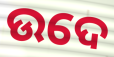
ଉଦେ